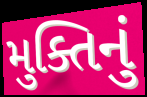
મુક્તિનું